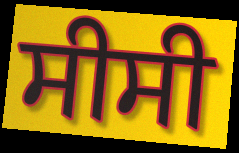
ਸੀਸੀ